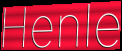
Henle